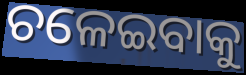
ଚଳେଇବାକୁ